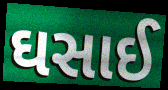
ઘસાઈ